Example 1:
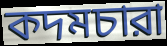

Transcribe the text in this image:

কদমচারা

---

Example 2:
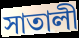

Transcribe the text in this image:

সাতালী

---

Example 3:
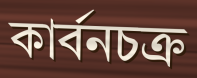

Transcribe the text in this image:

কার্বনচক্র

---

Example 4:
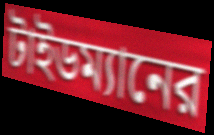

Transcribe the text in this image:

টাইডম্যানের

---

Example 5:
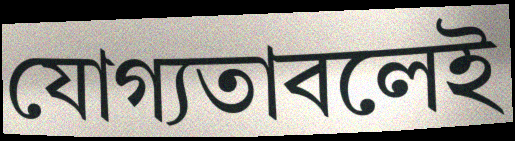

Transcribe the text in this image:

যোগ্যতাবলেই